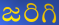
జరిగి